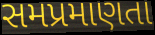
સમપ્રમાણતા